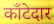
काँटेदार